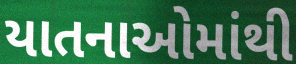
યાતનાઓમાંથી